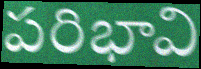
పరిభావి